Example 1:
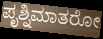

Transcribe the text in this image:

ಪೃಶ್ನಿಮಾತರೋ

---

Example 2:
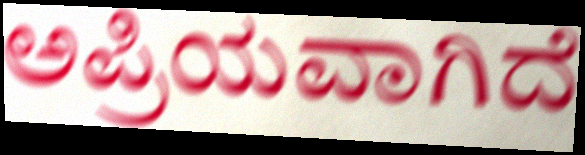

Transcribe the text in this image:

ಅಪ್ರಿಯವಾಗಿದೆ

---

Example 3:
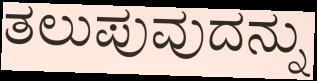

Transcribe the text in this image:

ತಲುಪುವುದನ್ನು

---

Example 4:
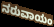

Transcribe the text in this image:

ನರುವಾಯಂ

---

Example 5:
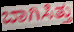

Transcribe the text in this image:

ಬಾಗಿಸಿತ್ತು